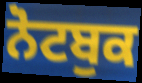
ਨੋਟਬੁਕ